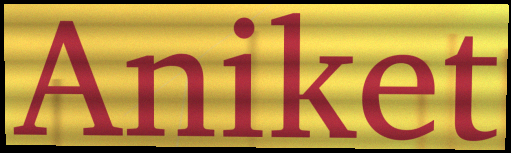
Aniket